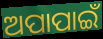
ଅପାପାଇଁ